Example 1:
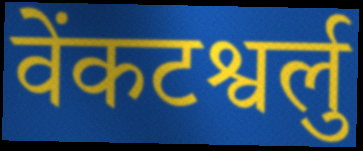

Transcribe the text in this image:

वेंकटश्वर्लु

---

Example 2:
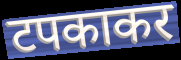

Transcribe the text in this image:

टपकाकर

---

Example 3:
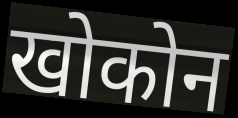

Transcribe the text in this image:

खोकोन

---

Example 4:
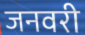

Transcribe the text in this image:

जनवरी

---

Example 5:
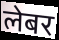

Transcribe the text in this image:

लेबर